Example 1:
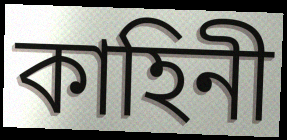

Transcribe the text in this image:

কাহিনী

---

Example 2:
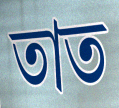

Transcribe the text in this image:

তাত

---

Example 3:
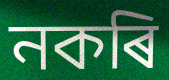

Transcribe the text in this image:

নকৰি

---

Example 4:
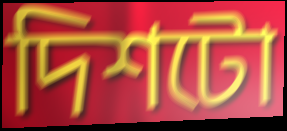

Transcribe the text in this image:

দিশটো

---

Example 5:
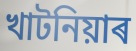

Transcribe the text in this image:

খাটনিয়াৰ